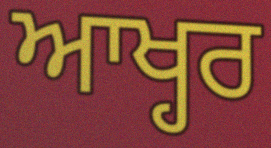
ਆਖ੍ਹਰ